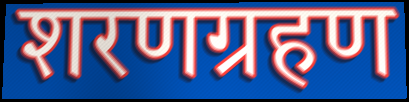
शरणग्रहण